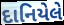
દાનિયેલે